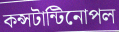
কন্সটান্টিনোপল